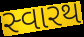
સ્વારથ